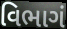
વિભાગં